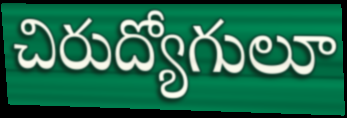
చిరుద్యోగులూ